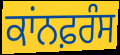
ਕਾਂਨਫ਼ਰੰਸ